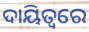
ଦାୟିତ୍ୱରେ